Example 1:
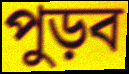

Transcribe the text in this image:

পুড়ব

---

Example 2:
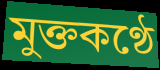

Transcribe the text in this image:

মুক্তকণ্ঠে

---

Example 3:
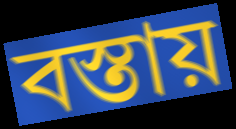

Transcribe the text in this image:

বস্তায়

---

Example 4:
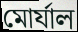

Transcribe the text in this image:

মোর্যাল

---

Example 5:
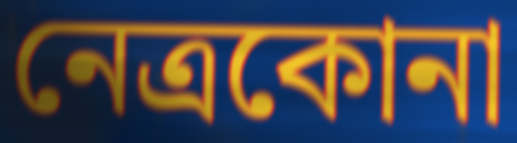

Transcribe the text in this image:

নেত্রকোনা